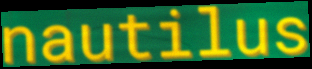
nautilus